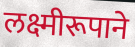
लक्ष्मीरूपाने